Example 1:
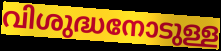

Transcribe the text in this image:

വിശുദ്ധനോടുള്ള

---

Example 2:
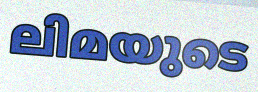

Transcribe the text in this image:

ലിമയുടെ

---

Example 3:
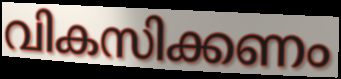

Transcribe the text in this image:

വികസിക്കണം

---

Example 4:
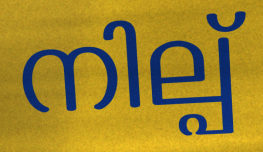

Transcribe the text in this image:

നില്പ്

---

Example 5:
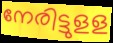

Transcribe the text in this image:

നേരിട്ടുളള